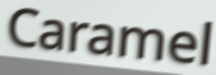
Caramel